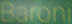
Baroni